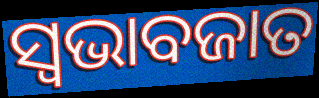
ସ୍ୱଭାବଜାତ